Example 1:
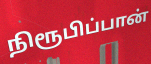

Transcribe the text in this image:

நிரூபிப்பான்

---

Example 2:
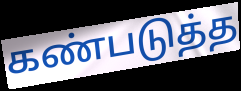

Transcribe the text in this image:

கண்படுத்த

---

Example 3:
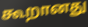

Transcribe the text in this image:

கூறானது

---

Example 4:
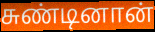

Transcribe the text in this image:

சுண்டினான்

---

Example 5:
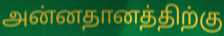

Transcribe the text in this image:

அன்னதானத்திற்கு